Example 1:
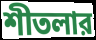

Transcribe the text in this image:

শীতলার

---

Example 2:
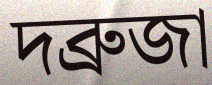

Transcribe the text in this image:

দব্রুজা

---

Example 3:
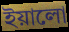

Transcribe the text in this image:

ইয়ালো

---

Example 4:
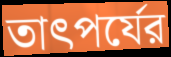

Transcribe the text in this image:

তাৎপর্যের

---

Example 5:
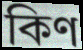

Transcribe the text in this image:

কিণ